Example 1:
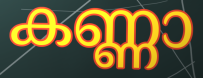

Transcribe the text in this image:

കണ്ണാ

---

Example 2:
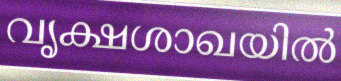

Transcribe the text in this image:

വൃക്ഷശാഖയിൽ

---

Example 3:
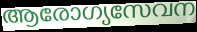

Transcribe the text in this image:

ആരോഗ്യസേവന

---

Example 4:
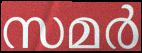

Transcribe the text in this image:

സമർ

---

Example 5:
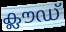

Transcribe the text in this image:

ക്ലൗഡ്